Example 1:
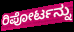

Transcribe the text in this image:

ರಿಪೋರ್ಟನ್ನು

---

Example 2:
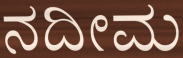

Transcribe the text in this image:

ನದೀಮ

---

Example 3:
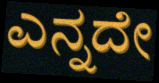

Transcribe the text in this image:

ಎನ್ನದೇ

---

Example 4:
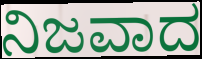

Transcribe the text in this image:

ನಿಜವಾದ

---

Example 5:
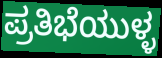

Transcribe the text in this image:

ಪ್ರತಿಭೆಯುಳ್ಳ